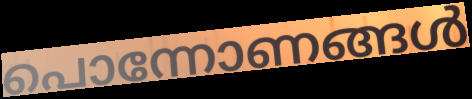
പൊന്നോണങ്ങൾ